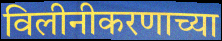
विलीनीकरणाच्या